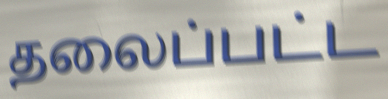
தலைப்பட்ட